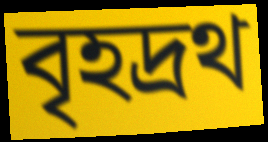
বৃহদ্রথ